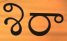
శిరా